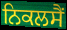
ਨਿਕਲਸੈਂ